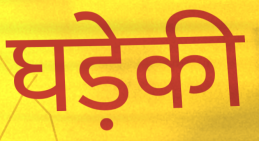
घड़ेकी